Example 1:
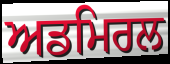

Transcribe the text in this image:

ਅਡਮਿਰਲ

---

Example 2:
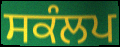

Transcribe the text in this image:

ਸਕੰਲਪ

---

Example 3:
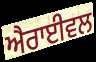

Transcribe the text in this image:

ਐਰਾਈਵਲ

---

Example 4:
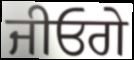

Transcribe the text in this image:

ਜੀਓਗੇ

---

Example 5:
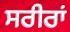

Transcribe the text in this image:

ਸਰੀਰਾਂ